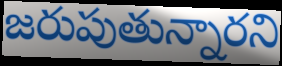
జరుపుతున్నారని